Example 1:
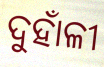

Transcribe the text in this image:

ଦୁହାଁଳୀ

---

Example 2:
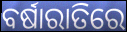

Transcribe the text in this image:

ବର୍ଷାରାତିରେ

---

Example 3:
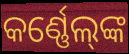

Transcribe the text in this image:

କର୍ଣ୍ଣେଲ୍‌ଙ୍କ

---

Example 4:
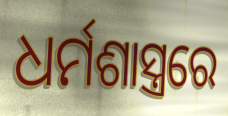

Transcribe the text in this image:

ଧର୍ମଶାସ୍ତ୍ରରେ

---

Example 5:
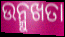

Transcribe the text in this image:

ଉନ୍ମୁଖତା